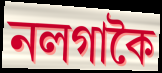
নলগাকৈ